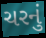
ચરનું